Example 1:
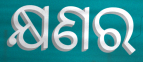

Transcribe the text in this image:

କ୍ଷଣର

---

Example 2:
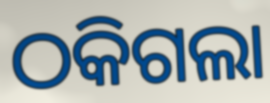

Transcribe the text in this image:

ଠକିଗଲା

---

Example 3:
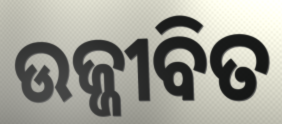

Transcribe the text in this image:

ଉଜ୍ଜୀବିତ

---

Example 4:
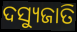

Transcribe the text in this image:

ଦସ୍ୟୁଜାତି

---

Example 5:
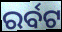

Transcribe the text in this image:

ରର୍ବଟ